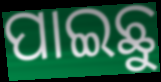
ପାଇଛୁ